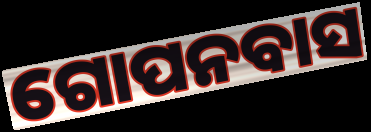
ଗୋପନବାସ